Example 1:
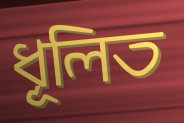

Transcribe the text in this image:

ধূলিত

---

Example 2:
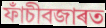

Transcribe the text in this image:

ফাঁচীবজাৰত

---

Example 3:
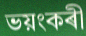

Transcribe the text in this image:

ভয়ংকৰী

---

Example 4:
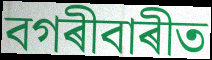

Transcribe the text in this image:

বগৰীবাৰীত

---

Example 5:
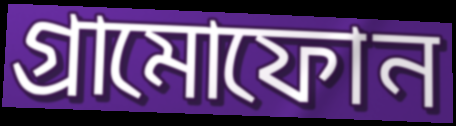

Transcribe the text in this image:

গ্ৰামোফোন